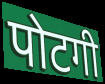
पोटगी